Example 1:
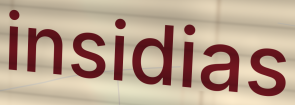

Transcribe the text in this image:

insidias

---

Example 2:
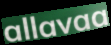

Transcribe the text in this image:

allavaa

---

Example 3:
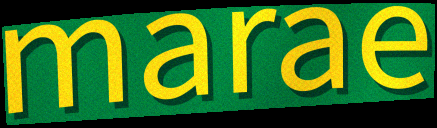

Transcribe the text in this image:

marae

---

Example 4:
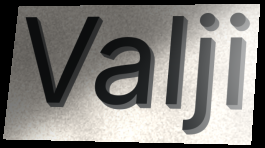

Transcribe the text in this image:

Valji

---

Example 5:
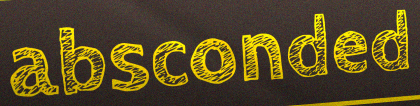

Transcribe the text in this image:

absconded